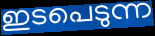
ഇടപെടുന്ന